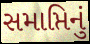
સમાપ્તિનું